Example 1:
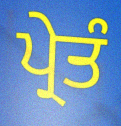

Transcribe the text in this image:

ਪ੍ਰੇਤੰ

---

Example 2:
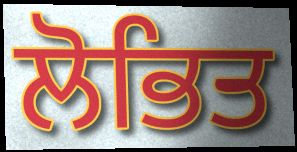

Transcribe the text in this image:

ਲੋਭਿਤ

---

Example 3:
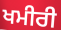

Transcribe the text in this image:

ਖਮੀਰੀ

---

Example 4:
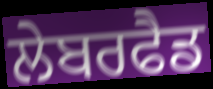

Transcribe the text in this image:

ਲੇਬਰਫੈਡ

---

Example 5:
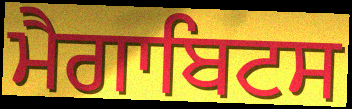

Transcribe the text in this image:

ਮੈਗਾਬਿਟਸ